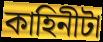
কাহিনীটা